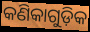
କଣିକାଗୁଡ଼ିକ